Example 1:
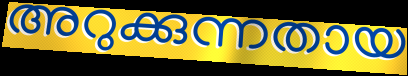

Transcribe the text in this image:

അറുക്കുന്നതായ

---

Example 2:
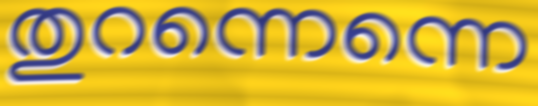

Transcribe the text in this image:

തുറന്നെന്നെ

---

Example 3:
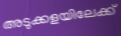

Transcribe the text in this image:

അടുക്കളയിലേക്ക്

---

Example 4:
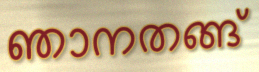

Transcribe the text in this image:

ഞാനതങ്ങ്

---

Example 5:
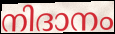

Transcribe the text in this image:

നിദാനം